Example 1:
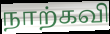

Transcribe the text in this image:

நாற்கவி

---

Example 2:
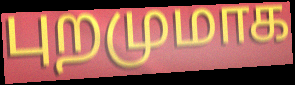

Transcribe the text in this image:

புறமுமாக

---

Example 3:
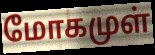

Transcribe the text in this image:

மோகமுள்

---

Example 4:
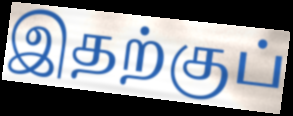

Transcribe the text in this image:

இதற்குப்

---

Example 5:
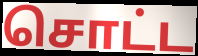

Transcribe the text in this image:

சொட்ட